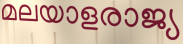
മലയാളരാജ്യ